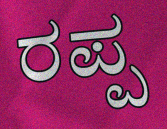
ರಪ್ಪ